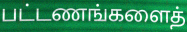
பட்டணங்களைத்